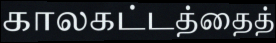
காலகட்டத்தைத்